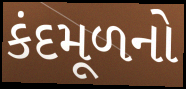
કંદમૂળનો